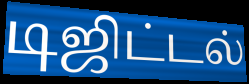
டிஜிட்டல்